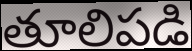
తూలిపడి